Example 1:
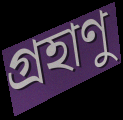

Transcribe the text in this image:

গ্রহাণু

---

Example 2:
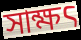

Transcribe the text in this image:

সাক্ষৎ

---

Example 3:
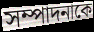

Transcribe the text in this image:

সম্পাদনাকে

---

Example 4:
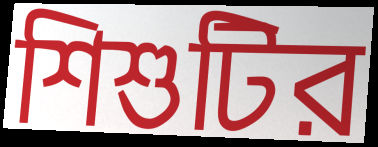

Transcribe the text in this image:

শিশুটির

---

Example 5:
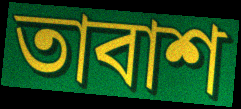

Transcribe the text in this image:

তাবাশ